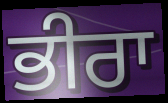
ਭੀਰਾ